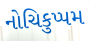
નોચિકુપ્પમ